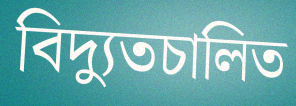
বিদ্যুতচালিত